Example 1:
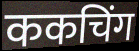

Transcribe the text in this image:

ककचिंग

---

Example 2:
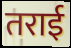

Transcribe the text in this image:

तराई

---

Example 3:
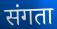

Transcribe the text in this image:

संगता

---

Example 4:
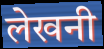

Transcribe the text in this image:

लेखनी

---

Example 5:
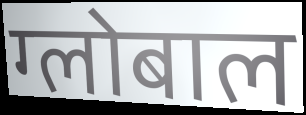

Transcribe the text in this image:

ग्लोबाल